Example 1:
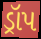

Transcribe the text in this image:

ડ્રૉપ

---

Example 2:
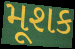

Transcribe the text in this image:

મૂશક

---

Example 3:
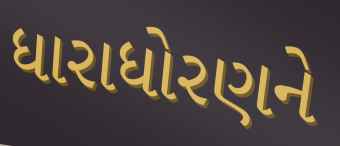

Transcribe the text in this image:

ધારાધોરણને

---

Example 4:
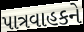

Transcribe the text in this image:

પાત્રવાહકને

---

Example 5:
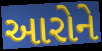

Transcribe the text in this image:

આરોને